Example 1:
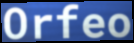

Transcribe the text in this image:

Orfeo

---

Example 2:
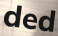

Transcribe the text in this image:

ded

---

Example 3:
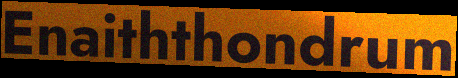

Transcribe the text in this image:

Enaiththondrum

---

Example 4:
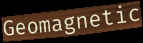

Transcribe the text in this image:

Geomagnetic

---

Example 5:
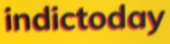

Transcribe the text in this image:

indictoday